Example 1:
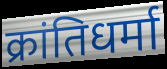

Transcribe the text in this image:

क्रांतिधर्मा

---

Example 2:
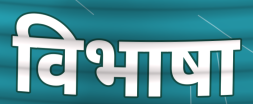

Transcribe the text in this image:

विभाषा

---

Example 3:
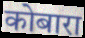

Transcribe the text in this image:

कोबारा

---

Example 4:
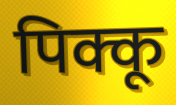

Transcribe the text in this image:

पिक्कू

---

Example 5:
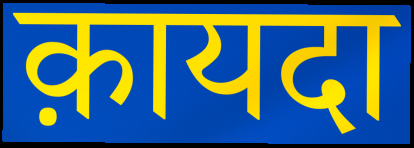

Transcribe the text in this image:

क़ायदा